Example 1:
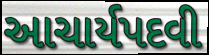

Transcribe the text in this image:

આચાર્યપદવી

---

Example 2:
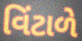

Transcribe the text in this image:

વિંટાળે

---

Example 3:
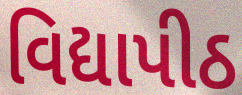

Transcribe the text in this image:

વિદ્યાપીઠ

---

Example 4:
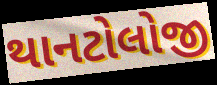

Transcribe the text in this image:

થાનટોલોજી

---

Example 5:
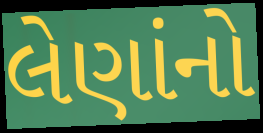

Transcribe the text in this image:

લેણાંનો